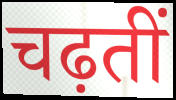
चढ़तीं